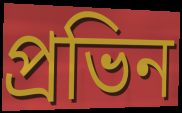
প্রভিন